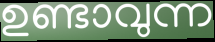
ഉണ്ടാവുന്ന